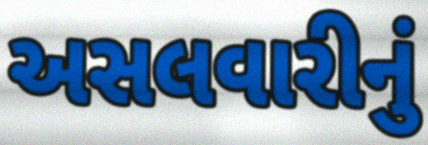
અસલવારીનું